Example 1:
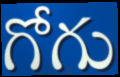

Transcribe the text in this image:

గోగు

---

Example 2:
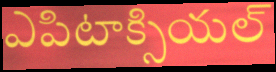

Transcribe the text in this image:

ఎపిటాక్సియల్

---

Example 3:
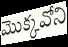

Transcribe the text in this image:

మొక్కవోని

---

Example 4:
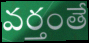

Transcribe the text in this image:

వర్తంతే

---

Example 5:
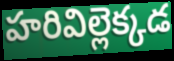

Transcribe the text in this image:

హరివిల్లెక్కడ